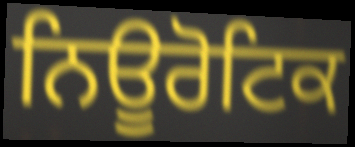
ਨਿਊਰੋਟਿਕ